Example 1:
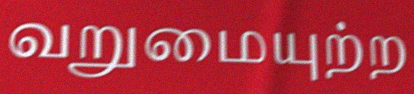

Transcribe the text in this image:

வறுமையுற்ற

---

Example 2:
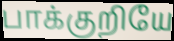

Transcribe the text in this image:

பாக்குறியே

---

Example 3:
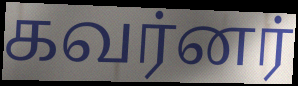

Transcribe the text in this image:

கவர்னர்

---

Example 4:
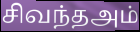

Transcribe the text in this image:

சிவந்தஅம்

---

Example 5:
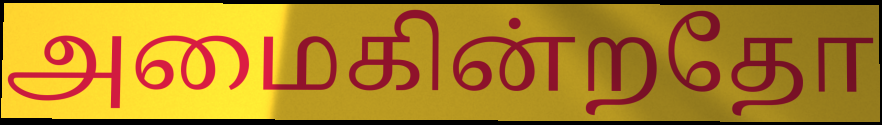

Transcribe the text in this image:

அமைகின்றதோ